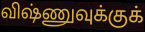
விஷ்ணுவுக்குக்